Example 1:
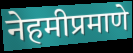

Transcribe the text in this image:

नेहमीप्रमाणे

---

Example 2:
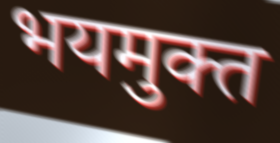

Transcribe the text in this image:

भयमुक्त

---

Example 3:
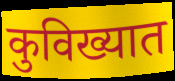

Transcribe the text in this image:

कुविख्यात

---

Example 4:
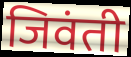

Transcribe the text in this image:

जिवंती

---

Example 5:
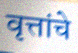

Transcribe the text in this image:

वृत्तांचे